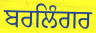
ਬਰਲਿੰਗਰ